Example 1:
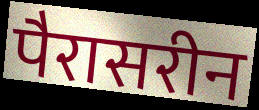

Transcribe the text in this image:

पैरासरीन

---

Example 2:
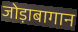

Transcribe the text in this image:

जोड़ाबागान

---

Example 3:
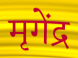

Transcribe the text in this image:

मृगेंद्र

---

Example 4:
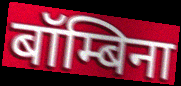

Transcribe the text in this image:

बॉम्बिना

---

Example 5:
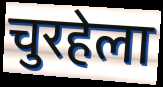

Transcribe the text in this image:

चुरहेला